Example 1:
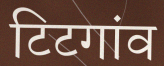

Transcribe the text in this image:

टिटगांव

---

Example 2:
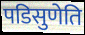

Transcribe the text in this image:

पडिसुणेति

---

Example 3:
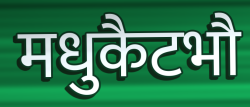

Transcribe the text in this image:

मधुकैटभौ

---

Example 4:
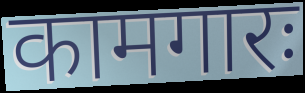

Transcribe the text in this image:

कामगारः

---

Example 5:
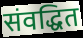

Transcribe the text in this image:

संवद्धित